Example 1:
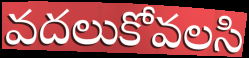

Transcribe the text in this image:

వదలుకోవలసి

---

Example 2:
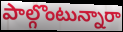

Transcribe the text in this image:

పాల్గొంటున్నారా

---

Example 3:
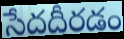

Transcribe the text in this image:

సేదదీరడం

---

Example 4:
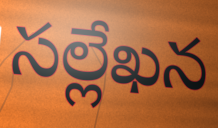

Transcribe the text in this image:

సల్లేఖన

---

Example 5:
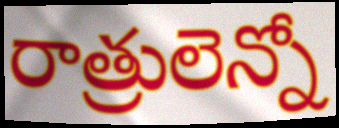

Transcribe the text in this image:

రాత్రులెన్నో